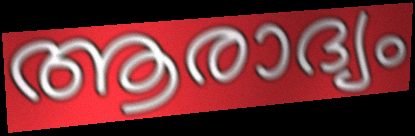
ആരാദ്യം